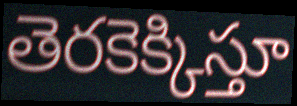
తెరకెక్కిస్తూ